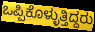
ಒಪ್ಪಿಕೊಳ್ಳುತ್ತಿದ್ದರು